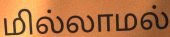
மில்லாமல்